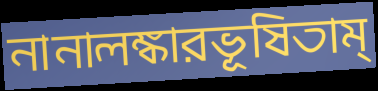
নানালঙ্কারভূষিতাম্